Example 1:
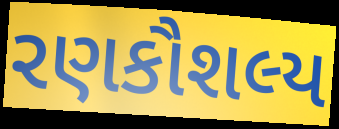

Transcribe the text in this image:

રણકૌશલ્ય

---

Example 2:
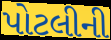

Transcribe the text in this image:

પોટલીની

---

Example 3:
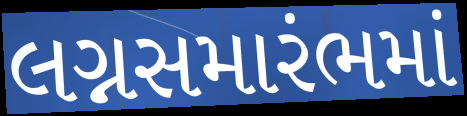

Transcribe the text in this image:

લગ્નસમારંભમાં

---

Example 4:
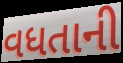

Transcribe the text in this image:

વધતાની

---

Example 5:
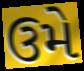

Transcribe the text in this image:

ઉમે